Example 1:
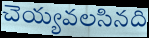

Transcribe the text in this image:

చెయ్యవలసినది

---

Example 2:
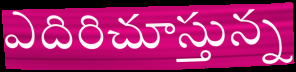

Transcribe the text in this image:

ఎదిరిచూస్తున్న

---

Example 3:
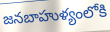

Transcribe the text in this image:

జనబాహుళ్యంలోకి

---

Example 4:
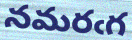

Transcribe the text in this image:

నమరఁగ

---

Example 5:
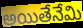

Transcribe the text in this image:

అయితేనేమి